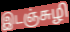
இடஞ்சுழி